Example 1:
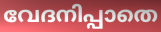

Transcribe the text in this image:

വേദനിപ്പാതെ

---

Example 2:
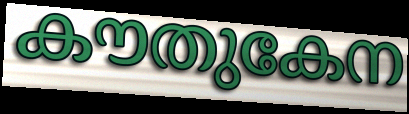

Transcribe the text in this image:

കൗതുകേന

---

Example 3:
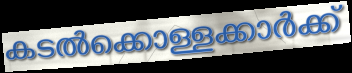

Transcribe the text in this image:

കടൽക്കൊള്ളക്കാർക്ക്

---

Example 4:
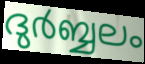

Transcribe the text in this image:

ദുർബ്ബലം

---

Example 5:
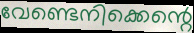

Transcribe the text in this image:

വേണ്ടെനിക്കെന്റെ